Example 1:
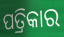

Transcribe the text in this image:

ପତ୍ରିକାର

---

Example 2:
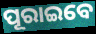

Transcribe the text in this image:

ପୂରାଇବେ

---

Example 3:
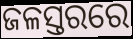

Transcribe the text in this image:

ଜଳସ୍ତରରେ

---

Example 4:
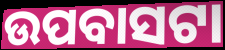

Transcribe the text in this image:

ଉପବାସଟା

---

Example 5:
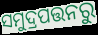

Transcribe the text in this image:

ସମୁଦ୍ରପତ୍ତନରୁ